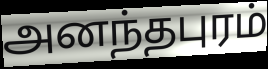
அனந்தபுரம்